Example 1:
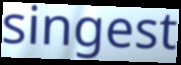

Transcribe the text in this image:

singest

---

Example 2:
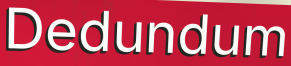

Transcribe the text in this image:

Dedundum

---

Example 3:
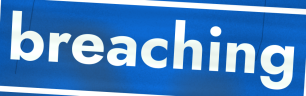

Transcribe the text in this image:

breaching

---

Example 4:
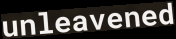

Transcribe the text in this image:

unleavened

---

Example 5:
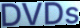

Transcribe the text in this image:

DVDs